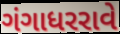
ગંગાધરરાવે